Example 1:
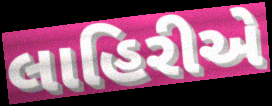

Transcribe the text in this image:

લાહિરીએ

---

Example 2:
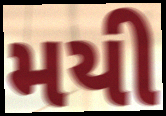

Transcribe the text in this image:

મયી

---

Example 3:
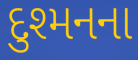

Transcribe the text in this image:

દુશ્મનના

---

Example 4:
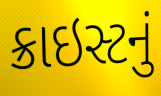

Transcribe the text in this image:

ક્રાઇસ્ટનું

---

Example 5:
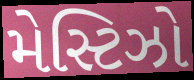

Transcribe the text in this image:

મેસ્ટિઝો